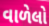
વાળેલો